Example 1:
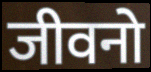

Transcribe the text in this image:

जीवनो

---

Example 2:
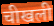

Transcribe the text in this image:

चीखली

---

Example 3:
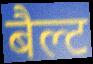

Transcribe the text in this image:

बैल्ट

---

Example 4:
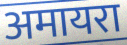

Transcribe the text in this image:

अमायरा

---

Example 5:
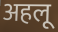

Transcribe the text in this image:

अहलू